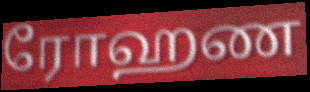
ரோஹண